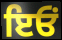
ਇਓਂ